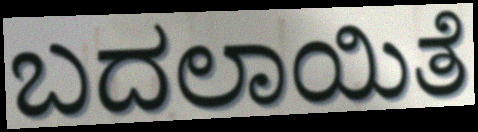
ಬದಲಾಯಿತೆ